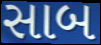
સાબ